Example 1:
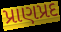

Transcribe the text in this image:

પ્રાણપ્રદ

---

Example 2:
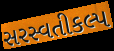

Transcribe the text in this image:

સરસ્વતીકલ્પ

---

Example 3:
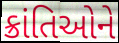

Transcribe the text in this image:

ક્રાંતિઓને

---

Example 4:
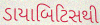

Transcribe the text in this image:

ડાયાબિટિસથી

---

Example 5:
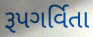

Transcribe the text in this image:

રૂપગર્વિતા